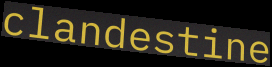
clandestine